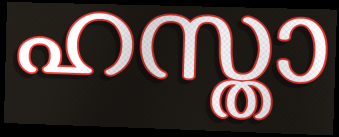
ഹസ്താ